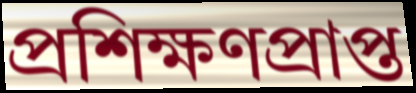
প্রশিক্ষণপ্রাপ্ত